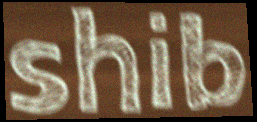
shib